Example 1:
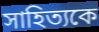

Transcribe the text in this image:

সাহিত্যকে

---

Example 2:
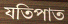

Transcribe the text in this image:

যতিপাত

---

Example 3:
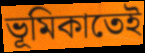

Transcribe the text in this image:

ভূমিকাতেই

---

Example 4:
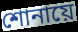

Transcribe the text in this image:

শোনায়ে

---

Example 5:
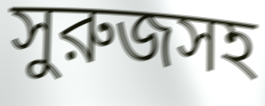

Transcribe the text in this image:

সুরুজসহ